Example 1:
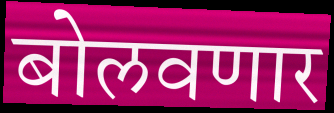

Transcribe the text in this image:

बोलवणार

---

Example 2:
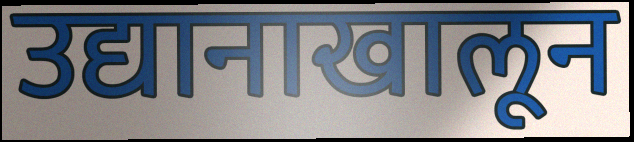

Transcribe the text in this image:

उद्यानाखालून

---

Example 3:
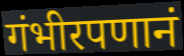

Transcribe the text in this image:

गंभीरपणानं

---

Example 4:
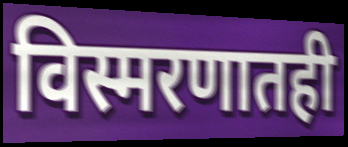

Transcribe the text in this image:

विस्मरणातही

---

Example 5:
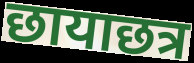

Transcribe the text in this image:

छायाछत्र